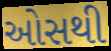
ઓસથી